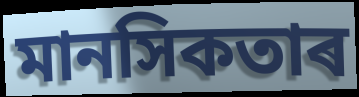
মানসিকতাৰ